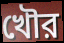
খৌর